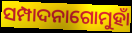
ସମ୍ପାଦନାଗୋମୁହାଁ